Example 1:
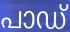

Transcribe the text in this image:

പാഡ്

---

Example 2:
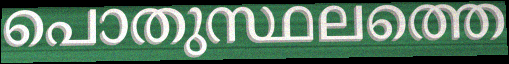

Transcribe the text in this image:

പൊതുസ്ഥലത്തെ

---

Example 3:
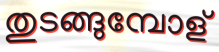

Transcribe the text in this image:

തുടങ്ങുമ്പോള്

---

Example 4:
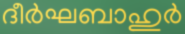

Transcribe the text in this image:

ദീർഘബാഹുർ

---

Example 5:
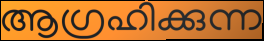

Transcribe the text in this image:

ആഗ്രഹിക്കുന്ന